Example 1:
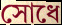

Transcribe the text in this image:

সোধে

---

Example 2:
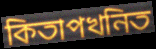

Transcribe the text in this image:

কিতাপখনিত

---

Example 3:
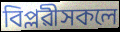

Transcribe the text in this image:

বিপ্লৱীসকলে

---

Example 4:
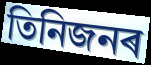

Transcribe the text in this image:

তিনিজনৰ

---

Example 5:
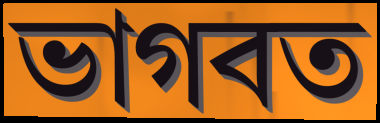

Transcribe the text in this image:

ভাগবত